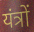
यंत्रों